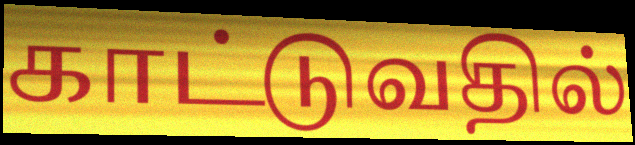
காட்டுவதில்